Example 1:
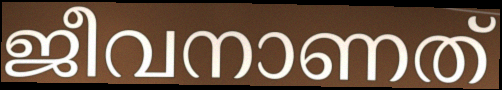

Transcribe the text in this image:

ജീവനാണത്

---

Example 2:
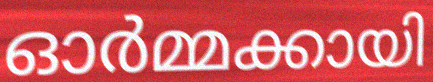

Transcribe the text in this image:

ഓർമ്മക്കായി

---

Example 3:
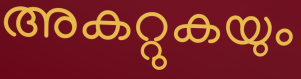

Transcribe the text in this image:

അകറ്റുകയും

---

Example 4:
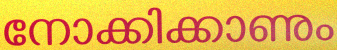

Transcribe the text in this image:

നോക്കിക്കാണും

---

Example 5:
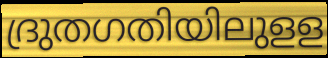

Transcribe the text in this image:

ദ്രുതഗതിയിലുളള